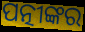
ପତ୍ନୀଙ୍କର